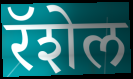
रॅशेल